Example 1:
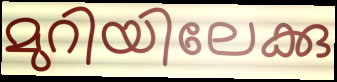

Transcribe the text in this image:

മുറിയിലേക്കു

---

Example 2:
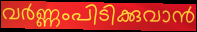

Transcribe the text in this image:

വർണ്ണംപിടിക്കുവാൻ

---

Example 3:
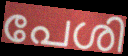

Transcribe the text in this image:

പേശി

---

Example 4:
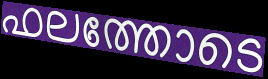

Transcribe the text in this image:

ഫലത്തോടെ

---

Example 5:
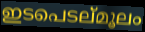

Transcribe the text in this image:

ഇടപെടല്മൂലം